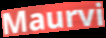
Maurvi